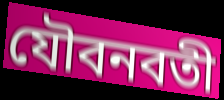
যৌবনবতী